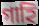
গাহি